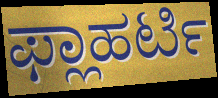
ಫ್ಲಾಹರ್ಟಿ